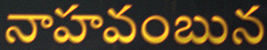
నాహవంబున